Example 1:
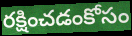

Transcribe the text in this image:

రక్షించడంకోసం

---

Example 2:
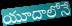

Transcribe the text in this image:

యూదాలోనే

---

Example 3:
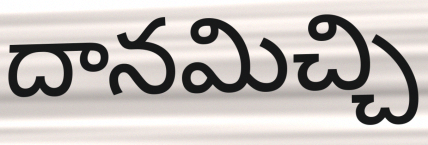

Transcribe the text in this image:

దానమిచ్చి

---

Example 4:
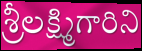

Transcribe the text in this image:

శ్రీలక్ష్మిగారిని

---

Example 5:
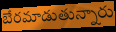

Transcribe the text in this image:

బేరమాడుతున్నారు